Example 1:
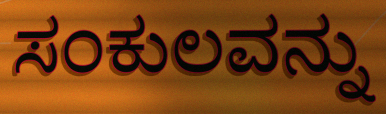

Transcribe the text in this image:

ಸಂಕುಲವನ್ನು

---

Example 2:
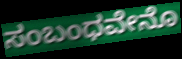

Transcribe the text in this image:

ಸಂಬಂಧವೇನೊ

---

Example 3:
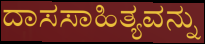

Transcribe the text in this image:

ದಾಸಸಾಹಿತ್ಯವನ್ನು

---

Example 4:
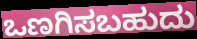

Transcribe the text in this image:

ಒಣಗಿಸಬಹುದು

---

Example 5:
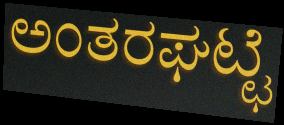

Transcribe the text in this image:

ಅಂತರಘಟ್ಟೆ